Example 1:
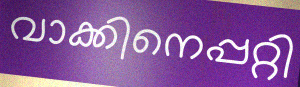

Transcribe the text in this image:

വാക്കിനെപ്പറ്റി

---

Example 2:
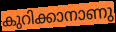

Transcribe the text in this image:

കുറിക്കാനാണു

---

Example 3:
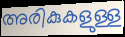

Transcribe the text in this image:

അരികുകളുള്ള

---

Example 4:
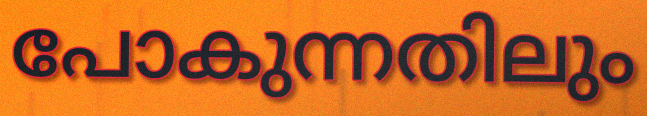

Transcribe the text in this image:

പോകുന്നതിലും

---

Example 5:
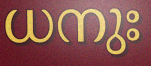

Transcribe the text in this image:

ധനുഃ